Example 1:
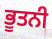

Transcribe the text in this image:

ਭੂਤਨੀ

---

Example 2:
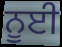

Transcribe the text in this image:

ਨੂਈ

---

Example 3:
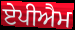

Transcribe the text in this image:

ਏਪੀਐਮ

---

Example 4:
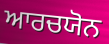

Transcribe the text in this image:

ਆਰਚਯੋਨ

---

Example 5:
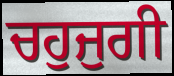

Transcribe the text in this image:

ਚਹੁਜੁਗੀ